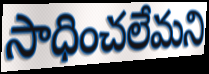
సాధించలేమని